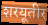
शरयूतीर